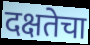
दक्षतेचा